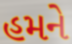
હમને